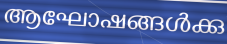
ആഘോഷങ്ങൾക്കു